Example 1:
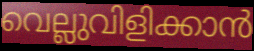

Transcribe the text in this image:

വെല്ലുവിളിക്കാൻ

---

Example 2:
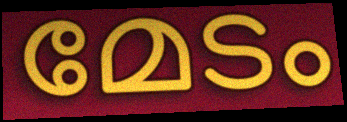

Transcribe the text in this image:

മേടം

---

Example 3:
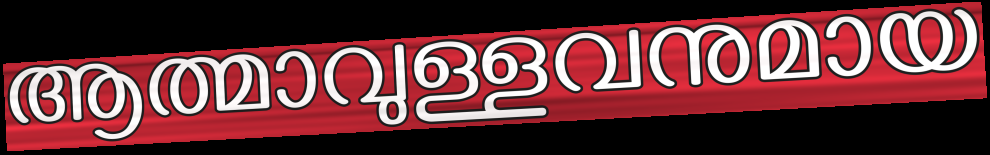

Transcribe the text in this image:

ആത്മാവുള്ളവനുമായ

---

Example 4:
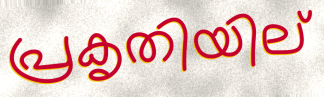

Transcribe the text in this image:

പ്രകൃതിയില്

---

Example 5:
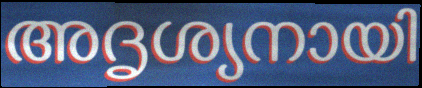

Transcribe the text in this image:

അദൃശ്യനായി